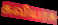
கவியரசு